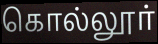
கொல்லூர்